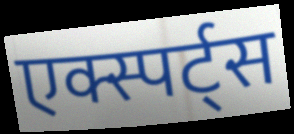
एक्स्पर्ट्स